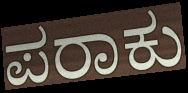
ಪರಾಕು